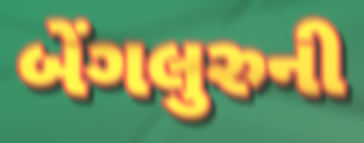
બેંગલુરુની